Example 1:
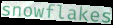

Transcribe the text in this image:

snowflakes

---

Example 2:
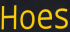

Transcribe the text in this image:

Hoes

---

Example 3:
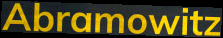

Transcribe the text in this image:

Abramowitz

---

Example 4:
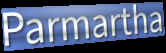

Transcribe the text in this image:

Parmartha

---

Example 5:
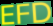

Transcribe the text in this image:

EFD